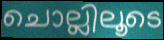
ചൊല്ലിലൂടെ